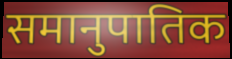
समानुपातिक